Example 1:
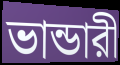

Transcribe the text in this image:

ভান্ডারী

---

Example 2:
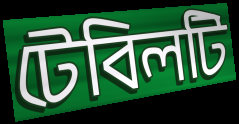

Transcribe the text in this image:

টেবিলটি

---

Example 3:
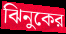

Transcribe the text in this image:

ঝিনুকের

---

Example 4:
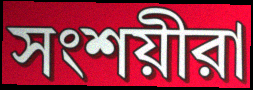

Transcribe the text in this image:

সংশয়ীরা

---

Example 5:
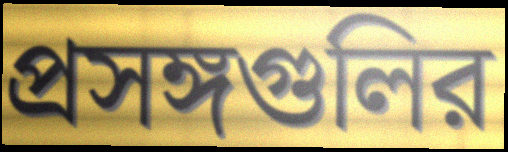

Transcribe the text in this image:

প্রসঙ্গগুলির